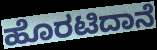
ಹೊರಟಿದಾನೆ